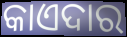
କାଏଦାର